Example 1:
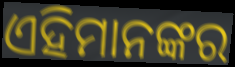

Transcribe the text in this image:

ଏହିମାନଙ୍କର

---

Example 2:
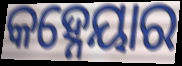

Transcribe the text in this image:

କହ୍ନେୟାର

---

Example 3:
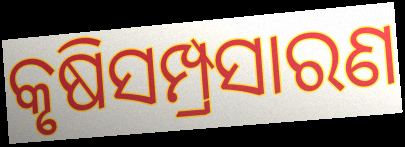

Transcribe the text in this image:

କୃଷିସମ୍ପ୍ରସାରଣ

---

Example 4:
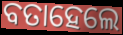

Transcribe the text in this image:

ବତାହେଲେ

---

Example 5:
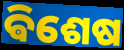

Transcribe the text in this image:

ଵିଶେଷ